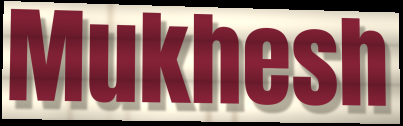
Mukhesh